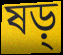
ষড়্